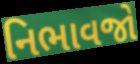
નિભાવજો